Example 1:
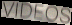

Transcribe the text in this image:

VIDEOS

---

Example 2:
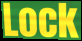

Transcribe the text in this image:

Lock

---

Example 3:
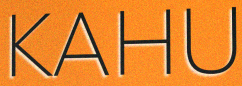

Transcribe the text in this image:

KAHU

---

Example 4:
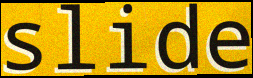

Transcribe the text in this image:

slide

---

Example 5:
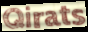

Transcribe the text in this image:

Qirats